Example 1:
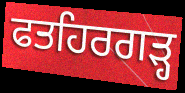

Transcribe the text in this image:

ਫਤਹਿਰਗੜ੍ਹ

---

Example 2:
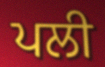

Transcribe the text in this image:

ਪਲੀ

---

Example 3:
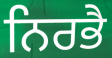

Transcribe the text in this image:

ਨਿਰਭੈ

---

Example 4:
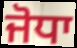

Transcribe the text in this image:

ਜੋਧਾ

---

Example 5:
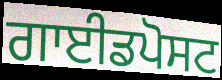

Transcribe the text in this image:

ਗਾਈਡਪੋਸਟ